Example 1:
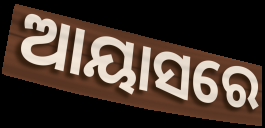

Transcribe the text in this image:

ଆୟାସରେ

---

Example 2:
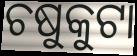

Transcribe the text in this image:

ଚଷୁକୁଟା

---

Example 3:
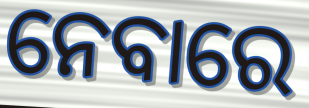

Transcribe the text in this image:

ନେବାରେ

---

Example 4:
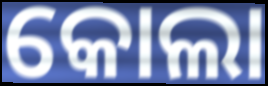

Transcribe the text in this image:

କୋଲା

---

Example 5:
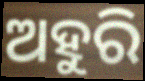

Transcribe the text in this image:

ଅହୁରି